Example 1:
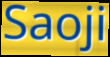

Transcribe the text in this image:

Saoji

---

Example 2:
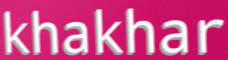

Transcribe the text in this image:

khakhar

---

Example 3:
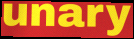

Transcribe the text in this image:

unary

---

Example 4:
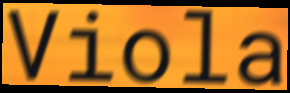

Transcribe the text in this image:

Viola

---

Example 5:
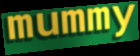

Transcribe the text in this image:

mummy